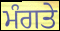
ਮੰਗਤੇ